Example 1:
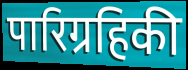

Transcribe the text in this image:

पारिग्रहिकी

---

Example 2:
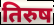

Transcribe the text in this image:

तिरुष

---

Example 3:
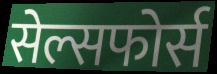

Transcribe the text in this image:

सेल्सफोर्स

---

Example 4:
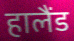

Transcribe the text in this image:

हालैंड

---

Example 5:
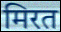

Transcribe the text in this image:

मिरत